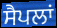
ਸੈਪਲਾਂ